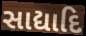
સાદ્યાદિ